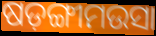
ଷଡ଼ଙ୍ଗୀମଉସା